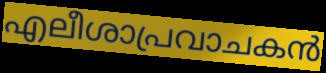
എലീശാപ്രവാചകൻ